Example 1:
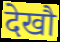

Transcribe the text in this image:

देखौ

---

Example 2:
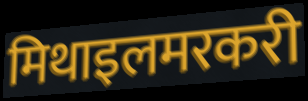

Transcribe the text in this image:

मिथाइलमरकरी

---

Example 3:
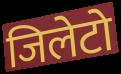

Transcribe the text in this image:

जिलेटो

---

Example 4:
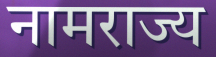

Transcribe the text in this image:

नामराज्य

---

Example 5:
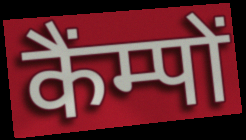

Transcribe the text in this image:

कैंम्पों